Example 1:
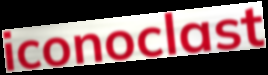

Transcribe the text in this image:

iconoclast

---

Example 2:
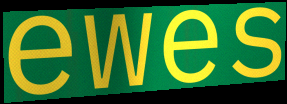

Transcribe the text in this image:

ewes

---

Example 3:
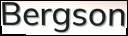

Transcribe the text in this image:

Bergson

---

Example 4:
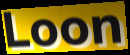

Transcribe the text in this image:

Loon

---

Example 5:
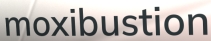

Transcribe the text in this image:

moxibustion